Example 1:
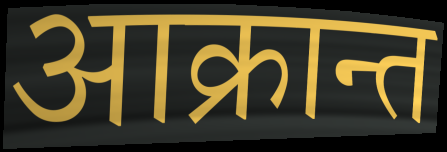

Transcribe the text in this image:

आक्रान्त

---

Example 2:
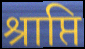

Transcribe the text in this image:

श्राप्ति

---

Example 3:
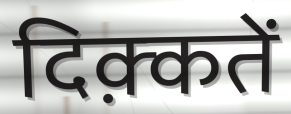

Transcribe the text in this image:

दिक़्कतें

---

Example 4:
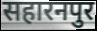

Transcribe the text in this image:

सहारनपुर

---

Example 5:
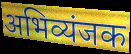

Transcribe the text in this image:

अभिव्यंजक